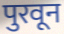
पुरवून